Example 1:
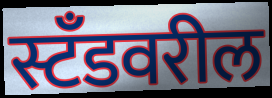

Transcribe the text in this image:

स्टँडवरील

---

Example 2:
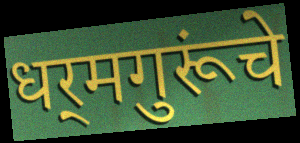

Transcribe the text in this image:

धर्मगुरूंचे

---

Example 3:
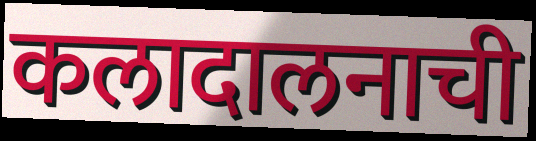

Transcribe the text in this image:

कलादालनाची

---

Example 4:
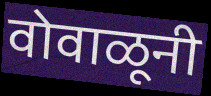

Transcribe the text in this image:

वोवाळूनी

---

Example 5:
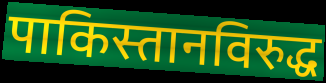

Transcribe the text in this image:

पाकिस्तानविरुद्ध